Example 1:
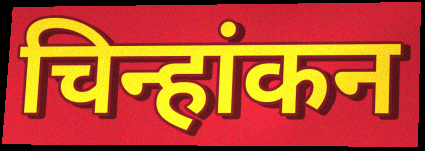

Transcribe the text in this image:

चिन्हांकन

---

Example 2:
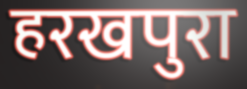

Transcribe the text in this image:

हरखपुरा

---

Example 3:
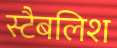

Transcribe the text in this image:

स्टैबलिश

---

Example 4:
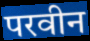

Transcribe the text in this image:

परवीन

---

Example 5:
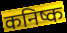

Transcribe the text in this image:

कनिष्क